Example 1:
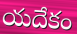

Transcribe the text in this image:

యదేకం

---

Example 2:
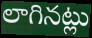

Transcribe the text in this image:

లాగినట్లు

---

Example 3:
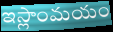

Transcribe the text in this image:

ఇస్లాంమయం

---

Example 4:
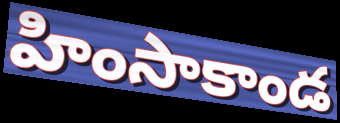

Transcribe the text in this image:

హింసాకాండ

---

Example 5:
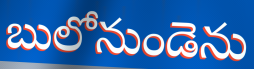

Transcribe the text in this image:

బులోనుండెను